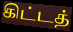
கிட்டத்